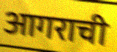
आगराची